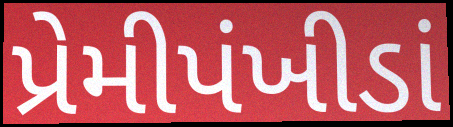
પ્રેમીપંખીડાં